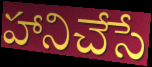
హానిచేసే